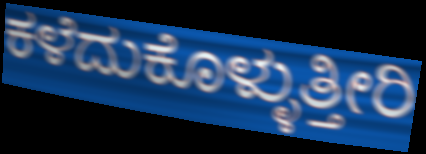
ಕಳೆದುಕೊಳ್ಳುತ್ತೀರಿ